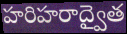
హరిహరాద్వైత